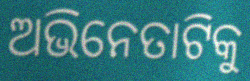
ଅଭିନେତାଟିକୁ